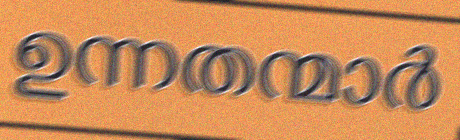
ഉന്നതന്മാർ